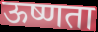
ऊष्णता